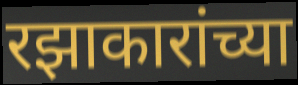
रझाकारांच्या